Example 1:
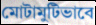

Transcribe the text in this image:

মোটামুটিভাবে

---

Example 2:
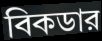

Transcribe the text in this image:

বিকডার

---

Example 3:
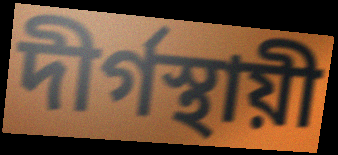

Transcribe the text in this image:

দীর্গস্থায়ী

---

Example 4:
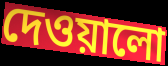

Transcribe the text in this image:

দেওয়ালো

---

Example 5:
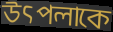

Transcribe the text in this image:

উৎপলাকে